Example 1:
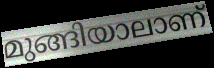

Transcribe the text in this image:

മുങ്ങിയാലാണ്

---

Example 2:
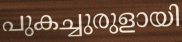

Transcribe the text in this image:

പുകച്ചുരുളായി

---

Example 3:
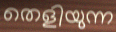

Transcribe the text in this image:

തെളിയുന്ന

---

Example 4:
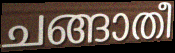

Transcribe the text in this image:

ചങ്ങാതീ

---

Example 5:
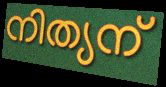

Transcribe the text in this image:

നിത്യന്